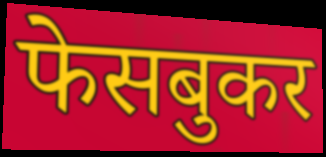
फेसबुकर